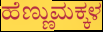
ಹೆಣ್ಣುಮಕ್ಕಳ